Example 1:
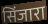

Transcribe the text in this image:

सिंजारा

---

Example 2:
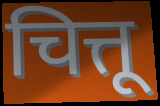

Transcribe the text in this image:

चित्तू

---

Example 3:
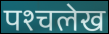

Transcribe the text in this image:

पश्चलेख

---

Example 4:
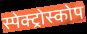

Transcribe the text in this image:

स्पेक्ट्रोस्कोप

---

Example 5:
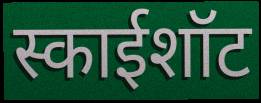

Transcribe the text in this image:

स्काईशॉट